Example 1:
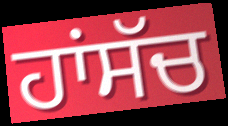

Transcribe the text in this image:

ਹਾਂਸੱਚ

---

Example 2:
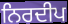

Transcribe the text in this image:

ਨਿਰਦੀਪ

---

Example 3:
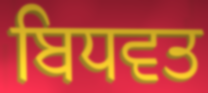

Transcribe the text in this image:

ਬਿਧਵਤ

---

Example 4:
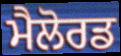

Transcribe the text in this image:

ਮੈਲੋਰਡ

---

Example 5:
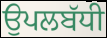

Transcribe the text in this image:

ਉਪਲਬੱਧੀ